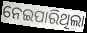
ନେଇପାରିଥିଲା